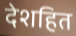
देशहित